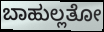
ಬಾಹುಲ್ಲತೋ